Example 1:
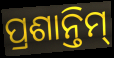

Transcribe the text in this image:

ପ୍ରଶାନ୍ତିମ୍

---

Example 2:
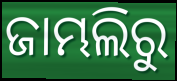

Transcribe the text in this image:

ଜାମ୍ଭଲିରୁ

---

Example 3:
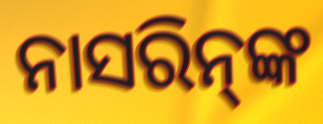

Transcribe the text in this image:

ନାସରିନ୍‌ଙ୍କ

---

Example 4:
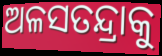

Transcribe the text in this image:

ଅଳସତନ୍ଦ୍ରାକୁ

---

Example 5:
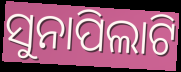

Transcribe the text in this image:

ସୁନାପିଲାଟି